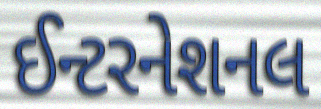
ઈન્ટરનેશનલ